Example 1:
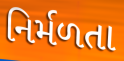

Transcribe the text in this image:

નિર્મળતા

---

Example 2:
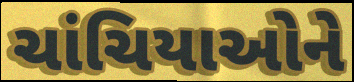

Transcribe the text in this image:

ચાંચિયાઓને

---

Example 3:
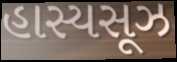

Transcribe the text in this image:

હાસ્યસૂઝ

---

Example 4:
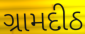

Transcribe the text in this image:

ગ્રામદીઠ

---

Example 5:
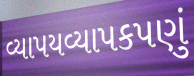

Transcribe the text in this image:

વ્યાપયવ્યાપકપણું